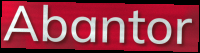
Abantor